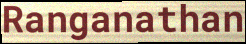
Ranganathan